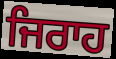
ਜਿਰਾਹ